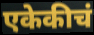
एकेकीचं